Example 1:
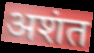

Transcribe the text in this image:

अशंत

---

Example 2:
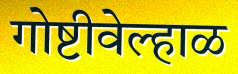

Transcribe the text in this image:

गोष्टीवेल्हाळ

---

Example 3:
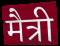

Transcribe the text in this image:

मैत्री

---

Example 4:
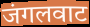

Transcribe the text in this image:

जंगलवाट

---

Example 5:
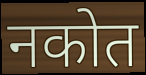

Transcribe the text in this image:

नकोत